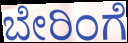
ಬೇರಿಂಗೆ